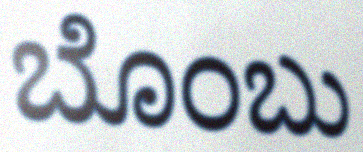
ಬೊಂಬು